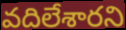
వదిలేశారని